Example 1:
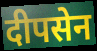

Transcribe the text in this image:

दीपसेन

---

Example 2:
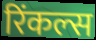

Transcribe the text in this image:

रिंकल्स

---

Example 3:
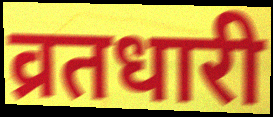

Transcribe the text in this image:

व्रतधारी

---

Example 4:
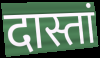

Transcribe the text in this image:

दास्तां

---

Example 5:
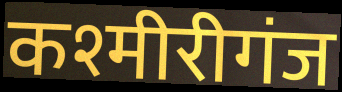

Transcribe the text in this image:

कश्मीरीगंज